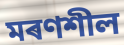
মৰণশীল